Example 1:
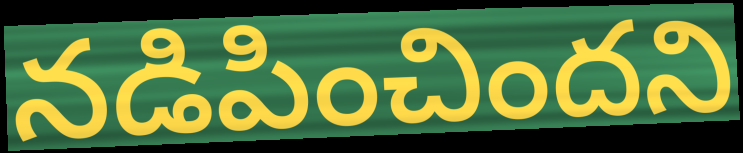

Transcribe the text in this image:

నడిపించిందని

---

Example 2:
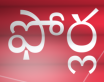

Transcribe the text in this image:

ఫోర్ల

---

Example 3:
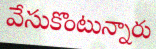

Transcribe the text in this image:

వేసుకొంటున్నారు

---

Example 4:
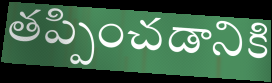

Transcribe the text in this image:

తప్పించడానికి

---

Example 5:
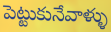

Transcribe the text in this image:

పెట్టుకునేవాళ్ళు